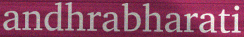
andhrabharati